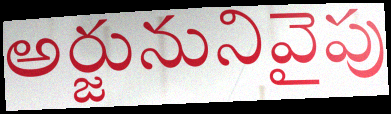
అర్జునునివైపు